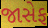
જાસેફ